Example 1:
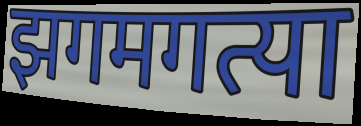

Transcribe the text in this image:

झगमगत्या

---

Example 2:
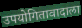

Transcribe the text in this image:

उपयोगितावादाला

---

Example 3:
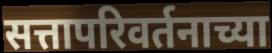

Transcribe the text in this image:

सत्तापरिवर्तनाच्या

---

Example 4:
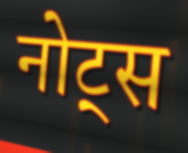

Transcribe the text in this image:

नोट्स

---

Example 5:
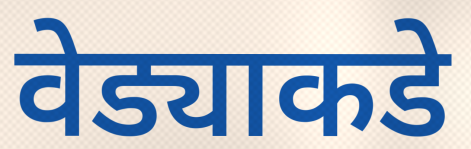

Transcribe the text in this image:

वेड्याकडे